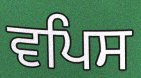
ਵਪਿਸ